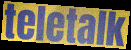
teletalk